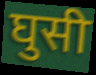
घुसी